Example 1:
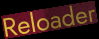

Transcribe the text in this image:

Reloader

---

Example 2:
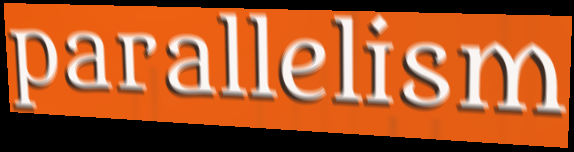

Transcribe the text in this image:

parallelism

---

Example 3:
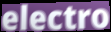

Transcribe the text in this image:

electro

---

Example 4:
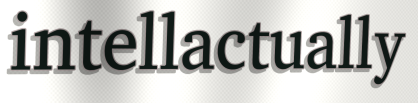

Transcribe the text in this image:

intellactually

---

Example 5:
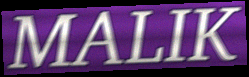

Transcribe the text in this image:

MALIK